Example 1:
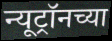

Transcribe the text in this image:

न्यूट्रॉनच्या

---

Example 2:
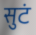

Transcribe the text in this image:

सुटं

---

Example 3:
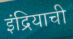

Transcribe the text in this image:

इंद्रियाची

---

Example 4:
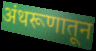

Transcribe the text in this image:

अंथरूणातून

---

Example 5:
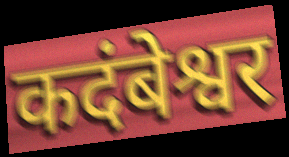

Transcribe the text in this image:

कदंबेश्वर